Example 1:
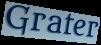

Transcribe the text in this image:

Grater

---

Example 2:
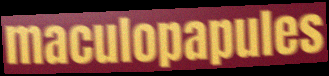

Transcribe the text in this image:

maculopapules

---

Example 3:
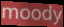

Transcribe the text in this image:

moody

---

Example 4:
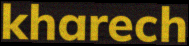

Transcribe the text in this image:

kharech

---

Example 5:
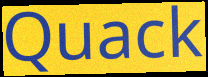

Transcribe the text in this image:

Quack